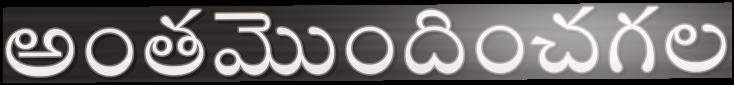
అంతమొందించగల